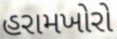
હરામખોરો